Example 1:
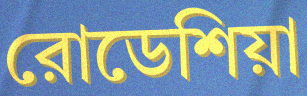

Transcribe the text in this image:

রোডেশিয়া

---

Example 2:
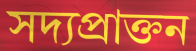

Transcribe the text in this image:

সদ্যপ্রাক্তন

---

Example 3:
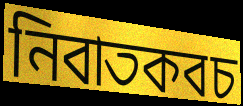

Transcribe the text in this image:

নিবাতকবচ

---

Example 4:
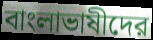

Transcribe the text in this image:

বাংলাভাষীদের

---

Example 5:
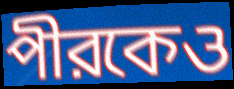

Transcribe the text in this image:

পীরকেও